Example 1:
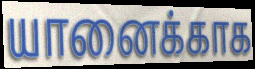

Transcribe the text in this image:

யானைக்காக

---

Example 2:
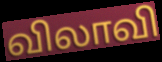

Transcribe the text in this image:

விலாவி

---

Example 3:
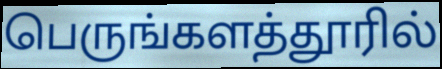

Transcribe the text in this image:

பெருங்களத்தூரில்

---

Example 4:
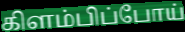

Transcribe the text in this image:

கிளம்பிப்போய்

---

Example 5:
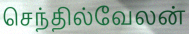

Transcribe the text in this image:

செந்தில்வேலன்